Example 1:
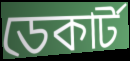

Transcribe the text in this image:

ডেকাৰ্ট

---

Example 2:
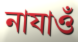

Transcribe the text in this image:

নাযাওঁ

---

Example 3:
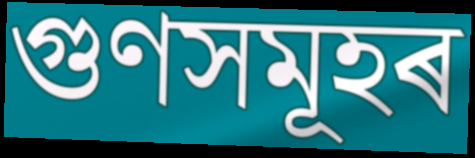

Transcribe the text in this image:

গুণসমূহৰ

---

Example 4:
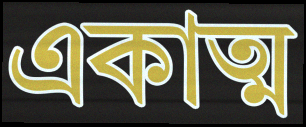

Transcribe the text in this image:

একাত্ম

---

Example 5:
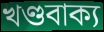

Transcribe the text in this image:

খণ্ডবাক্য